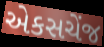
એકસચેંજ